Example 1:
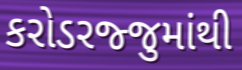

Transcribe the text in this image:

કરોડરજ્જુમાંથી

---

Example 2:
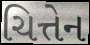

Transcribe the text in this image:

ચિત્તેન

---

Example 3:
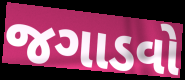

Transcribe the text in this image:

જગાડવો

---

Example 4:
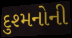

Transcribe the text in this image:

દુશ્મનોની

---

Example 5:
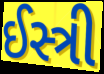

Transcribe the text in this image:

ઈસ્ત્રી